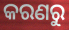
କରଣରୁ